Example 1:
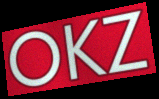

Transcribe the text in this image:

OKZ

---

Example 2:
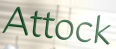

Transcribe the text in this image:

Attock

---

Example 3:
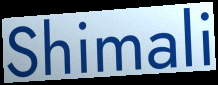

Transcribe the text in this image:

Shimali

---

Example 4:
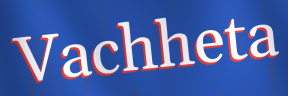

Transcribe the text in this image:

Vachheta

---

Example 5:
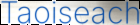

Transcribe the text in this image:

Taoiseach